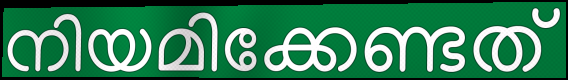
നിയമിക്കേണ്ടത്